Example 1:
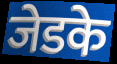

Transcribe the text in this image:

जेडके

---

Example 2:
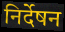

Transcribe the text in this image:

निर्देषन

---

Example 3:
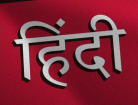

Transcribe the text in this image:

हिंदी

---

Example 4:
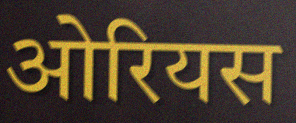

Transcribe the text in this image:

ओरियस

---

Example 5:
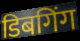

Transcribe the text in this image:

डिबगिंग